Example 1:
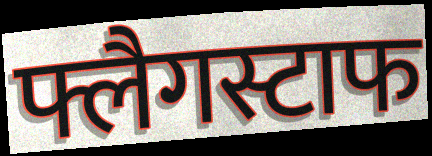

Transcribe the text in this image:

फ्लैगस्टाफ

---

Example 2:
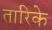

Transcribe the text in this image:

तारिके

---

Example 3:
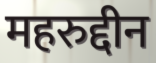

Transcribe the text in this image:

महरुद्दीन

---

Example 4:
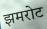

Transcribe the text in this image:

झमरोट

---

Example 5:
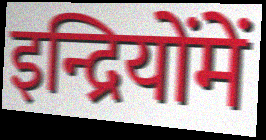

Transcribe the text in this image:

इन्द्रियोंमें